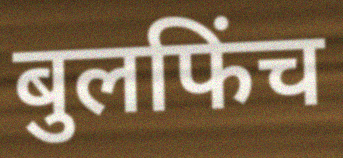
बुलफिंच